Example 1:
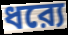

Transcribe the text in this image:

ধর‍্যে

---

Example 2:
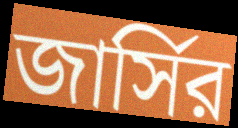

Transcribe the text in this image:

জার্সির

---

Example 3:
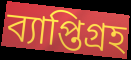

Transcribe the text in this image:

ব্যাপ্তিগ্রহ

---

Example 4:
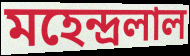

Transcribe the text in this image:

মহেন্দ্রলাল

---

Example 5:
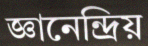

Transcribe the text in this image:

জ্ঞানেন্দ্রিয়